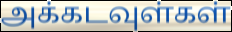
அக்கடவுள்கள்